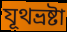
যূথভ্রষ্টা